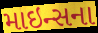
માઇન્સના